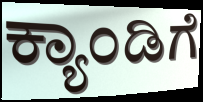
ಕ್ಯಾಂಡಿಗೆ